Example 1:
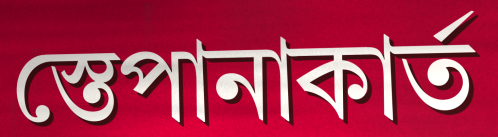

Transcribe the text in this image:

স্তেপানাকার্ত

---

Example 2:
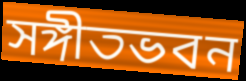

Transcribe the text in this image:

সঙ্গীতভবন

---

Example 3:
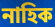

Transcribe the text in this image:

নাহিক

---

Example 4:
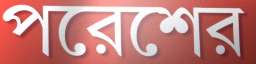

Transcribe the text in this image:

পরেশের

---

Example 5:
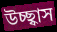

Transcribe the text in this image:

উচ্ছ্বাস